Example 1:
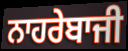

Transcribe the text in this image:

ਨਾਹਰੇਬਾਜੀ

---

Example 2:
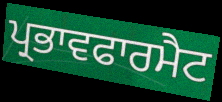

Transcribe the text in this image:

ਪ੍ਰਭਾਵਫਾਰਮੈਟ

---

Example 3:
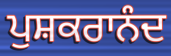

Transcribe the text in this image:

ਪੁਸ਼ਕਰਾਨੰਦ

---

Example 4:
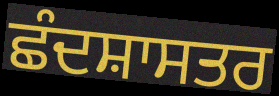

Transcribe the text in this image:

ਛੰਦਸ਼ਾਸਤਰ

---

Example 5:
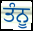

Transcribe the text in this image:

ਤੰਨੂ